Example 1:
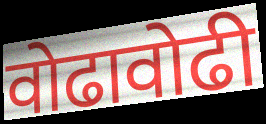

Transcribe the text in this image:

वोढावोढी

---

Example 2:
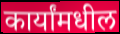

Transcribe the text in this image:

कार्यांमधील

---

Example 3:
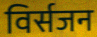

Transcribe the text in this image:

विर्सजन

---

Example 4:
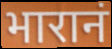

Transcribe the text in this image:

भारानं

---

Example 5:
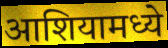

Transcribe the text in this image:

आशियामध्ये